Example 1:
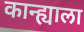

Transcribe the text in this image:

कान्ह्याला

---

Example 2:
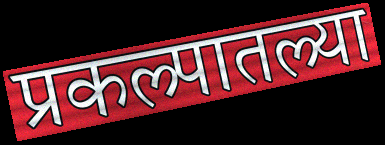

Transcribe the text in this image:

प्रकल्पातल्या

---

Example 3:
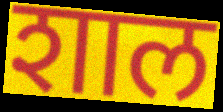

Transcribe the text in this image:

शाल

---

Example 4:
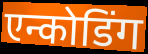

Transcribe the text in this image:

एन्कोडिंग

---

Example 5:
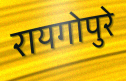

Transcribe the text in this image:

रायगोपुरे